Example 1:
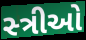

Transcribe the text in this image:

સ્‍ત્રીઓ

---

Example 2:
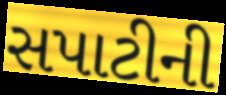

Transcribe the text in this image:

સપાટીની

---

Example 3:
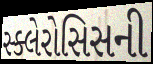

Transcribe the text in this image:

સ્ક્લેરોસિસની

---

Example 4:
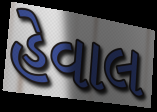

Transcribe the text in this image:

હેવાલ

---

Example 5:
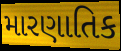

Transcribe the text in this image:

મારણાતિક